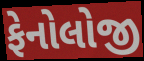
ફેનોલોજી